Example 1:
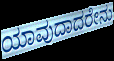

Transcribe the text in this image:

ಯಾವುದಾದರೇನು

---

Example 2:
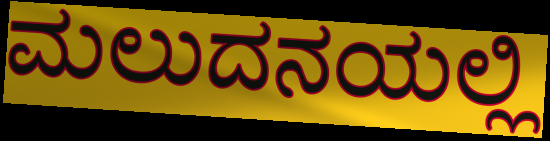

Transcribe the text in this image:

ಮಲುದನಯಲ್ಲಿ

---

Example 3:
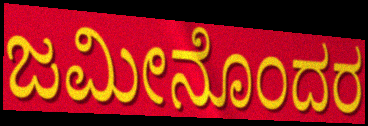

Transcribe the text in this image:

ಜಮೀನೊಂದರ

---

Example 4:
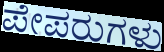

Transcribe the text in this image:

ಪೇಪರುಗಳು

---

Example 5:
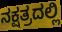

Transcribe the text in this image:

ನಕ್ಷತ್ರದಲ್ಲಿ